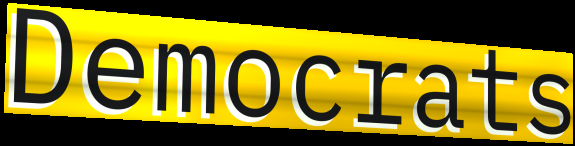
Democrats